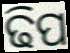
ଢିପ